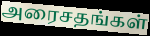
அரைசதங்கள்